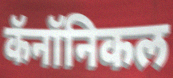
कॅनॉनिकल